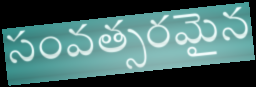
సంవత్సరమైన